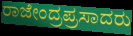
ರಾಜೇಂದ್ರಪ್ರಸಾದರು